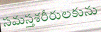
సమస్తశరీరులకును